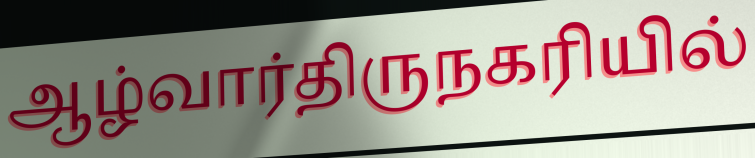
ஆழ்வார்திருநகரியில்